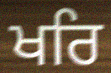
ਖਰਿ